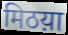
मिठय़ा